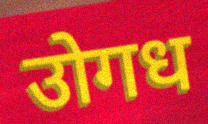
उोगध